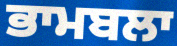
ਭਾਮਬਲਾ